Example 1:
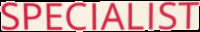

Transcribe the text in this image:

SPECIALIST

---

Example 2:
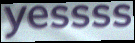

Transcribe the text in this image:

yessss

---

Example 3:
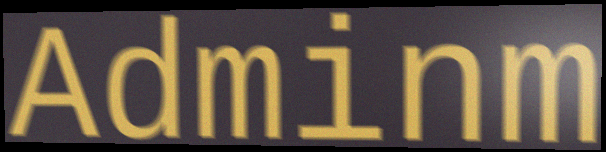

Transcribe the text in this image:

Adminm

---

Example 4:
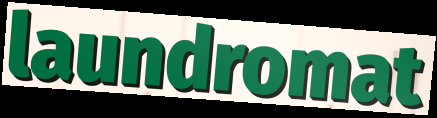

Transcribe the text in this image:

laundromat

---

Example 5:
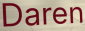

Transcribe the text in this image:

Daren